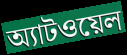
অ্যাটওয়েল